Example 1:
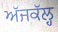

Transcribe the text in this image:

ਅੱਜਕੱਲ੍ਹ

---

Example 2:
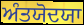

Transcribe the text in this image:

ਅੰਤਯੋਦਯਾ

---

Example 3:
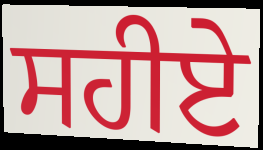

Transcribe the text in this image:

ਸਹੀਏ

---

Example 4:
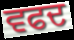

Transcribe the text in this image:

ਵਫਦ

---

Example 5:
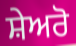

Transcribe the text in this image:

ਸ਼ੇਅਰੋ